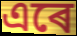
এৰে